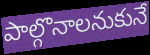
పాల్గొనాలనుకునే